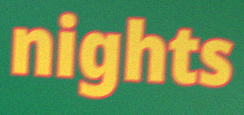
nights